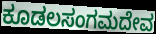
ಕೂಡಲಸಂಗಮದೇವ